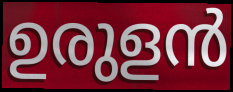
ഉരുളൻ